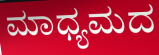
ಮಾಧ್ಯಮದ